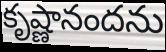
కృష్ణానందను